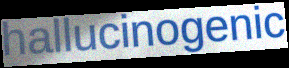
hallucinogenic